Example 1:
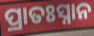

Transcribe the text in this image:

ପ୍ରାତଃସ୍ନାନ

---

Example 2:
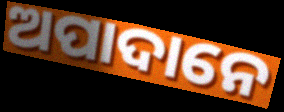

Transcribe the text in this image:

ଅପାଦାନେ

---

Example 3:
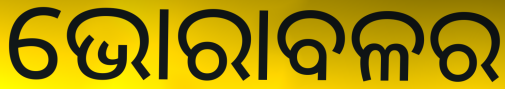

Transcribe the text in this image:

ଭୋରାବଳର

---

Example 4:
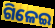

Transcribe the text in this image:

ଗିଳେଇ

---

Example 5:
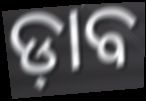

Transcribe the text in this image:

ଡ଼ାବ